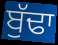
ਬੁੱਢਾ